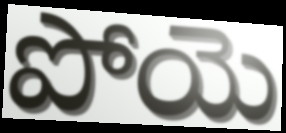
పోయె